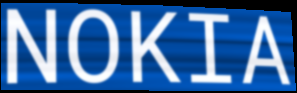
NOKIA